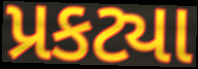
પ્રકટ્યા